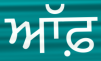
ਆੱਫ਼